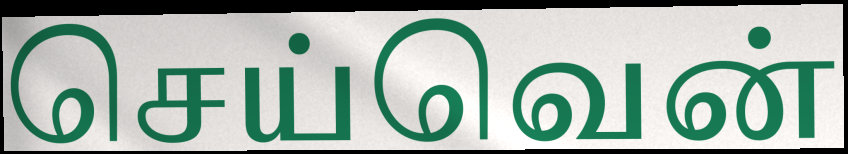
செய்வென்